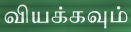
வியக்கவும்